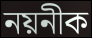
নয়নীক